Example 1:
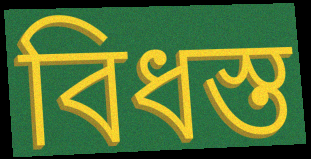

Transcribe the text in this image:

বিধস্ত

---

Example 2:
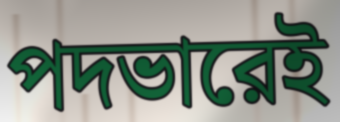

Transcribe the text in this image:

পদভারেই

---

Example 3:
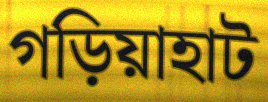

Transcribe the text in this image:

গড়িয়াহাট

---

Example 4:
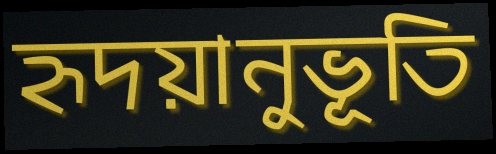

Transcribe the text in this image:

হৃদয়ানুভূতি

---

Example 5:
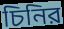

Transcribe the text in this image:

চিনির